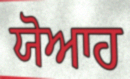
ਯੋਆਹ